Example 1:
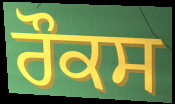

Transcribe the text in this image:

ਰੌਕਸ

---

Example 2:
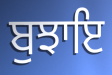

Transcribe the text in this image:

ਬੁਝਾਇ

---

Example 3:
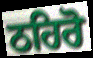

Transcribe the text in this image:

ਠਹਿਰੋ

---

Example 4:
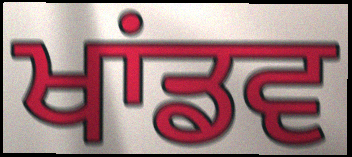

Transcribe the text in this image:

ਖਾਂਡਵ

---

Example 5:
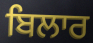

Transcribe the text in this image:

ਬਿਲਾਰ